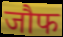
जौफ